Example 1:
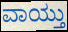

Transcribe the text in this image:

ವಾಯ್ತು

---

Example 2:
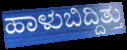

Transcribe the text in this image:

ಹಾಳುಬಿದ್ದಿತ್ತು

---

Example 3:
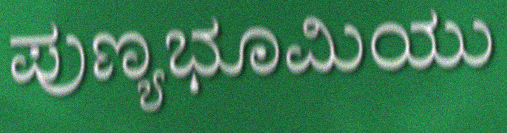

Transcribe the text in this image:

ಪುಣ್ಯಭೂಮಿಯು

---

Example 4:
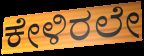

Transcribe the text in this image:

ಕೇಳಿರಲೇ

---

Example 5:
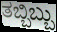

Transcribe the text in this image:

ತಬ್ಬಿಬ್ಬು